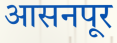
आसनपूर